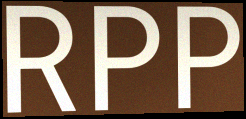
RPP